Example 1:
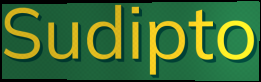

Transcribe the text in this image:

Sudipto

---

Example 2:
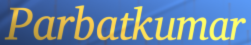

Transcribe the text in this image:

Parbatkumar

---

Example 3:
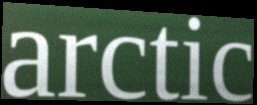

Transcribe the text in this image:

arctic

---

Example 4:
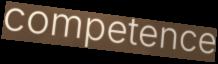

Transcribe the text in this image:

competence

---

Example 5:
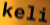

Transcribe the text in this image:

keli